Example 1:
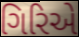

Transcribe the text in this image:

ગિરિએ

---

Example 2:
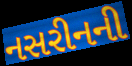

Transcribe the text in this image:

નસરીનની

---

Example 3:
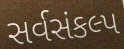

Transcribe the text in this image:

સર્વસંકલ્પ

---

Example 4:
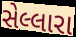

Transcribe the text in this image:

સેલ્લારા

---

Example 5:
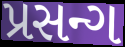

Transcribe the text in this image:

પ્રસન્ગ